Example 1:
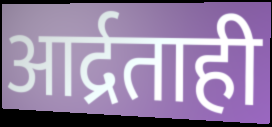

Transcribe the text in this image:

आर्द्रताही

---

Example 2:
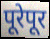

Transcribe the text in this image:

पूरेपूर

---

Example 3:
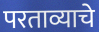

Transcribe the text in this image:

परताव्याचे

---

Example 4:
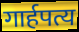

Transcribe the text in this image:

गार्हपत्य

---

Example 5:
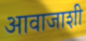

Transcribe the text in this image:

आवाजाशी